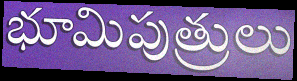
భూమిపుత్రులు